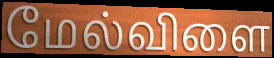
மேல்விளை